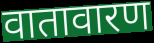
वातावारण